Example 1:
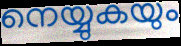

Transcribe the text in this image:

നെയ്യുകയും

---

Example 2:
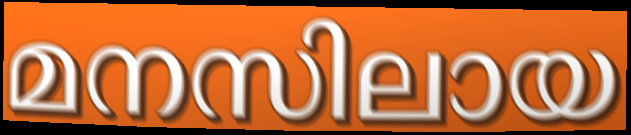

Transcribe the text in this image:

മനസിലായ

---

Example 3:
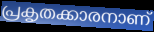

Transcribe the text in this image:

പ്രകൃതക്കാരനാണ്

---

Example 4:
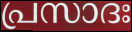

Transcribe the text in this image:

പ്രസാദഃ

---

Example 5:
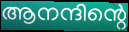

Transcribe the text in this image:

ആനന്ദിന്റെ